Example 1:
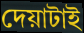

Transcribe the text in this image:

দেয়াটাই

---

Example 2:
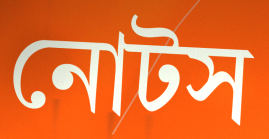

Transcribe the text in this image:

নোটস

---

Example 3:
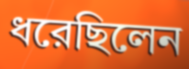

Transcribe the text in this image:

ধরেছিলেন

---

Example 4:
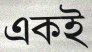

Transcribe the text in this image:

একই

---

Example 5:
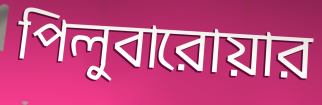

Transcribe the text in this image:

পিলুবারোয়ার